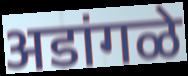
अडांगळे